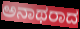
ಅನಾಥರಾದ